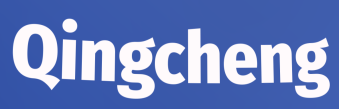
Qingcheng